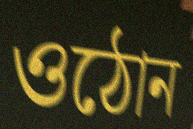
ওঠোন